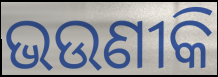
ଭଉଣୀକି